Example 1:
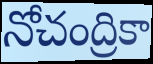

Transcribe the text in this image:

నోచంద్రికా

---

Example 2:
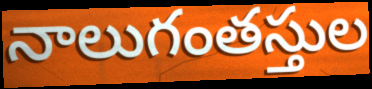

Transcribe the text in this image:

నాలుగంతస్తుల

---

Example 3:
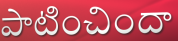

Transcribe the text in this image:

పాటించిందా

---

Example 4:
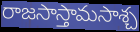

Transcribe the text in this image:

రాజసాస్తామసాశ్చ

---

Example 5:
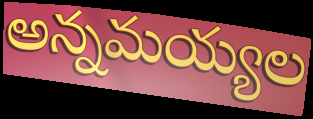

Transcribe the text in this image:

అన్నమయ్యల